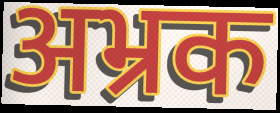
अभ्रक